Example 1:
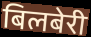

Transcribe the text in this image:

बिलबेरी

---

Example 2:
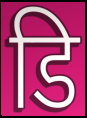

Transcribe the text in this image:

डि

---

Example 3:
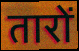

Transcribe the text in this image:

तारों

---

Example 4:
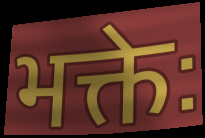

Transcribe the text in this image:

भक्तेः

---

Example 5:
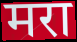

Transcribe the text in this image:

मरा